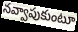
నవ్వాపుకుంటూ